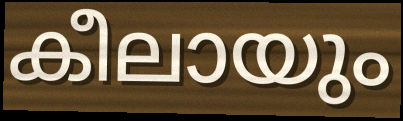
കീലായും